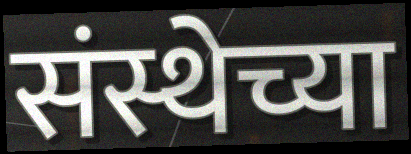
संस्थेच्या